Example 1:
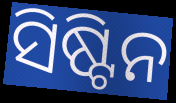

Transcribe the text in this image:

ସିଷ୍ଟିନ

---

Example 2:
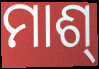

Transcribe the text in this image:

ମାଶ୍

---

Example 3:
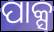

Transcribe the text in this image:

ପାକ୍ସ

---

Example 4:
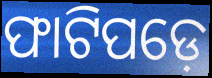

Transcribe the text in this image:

ଫାଟିପଡ଼େ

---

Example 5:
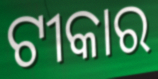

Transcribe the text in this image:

ଟୀକାର